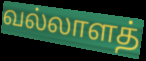
வல்லாளத்